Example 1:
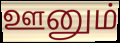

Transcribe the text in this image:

ஊனும்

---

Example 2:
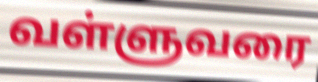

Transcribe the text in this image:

வள்ளுவரை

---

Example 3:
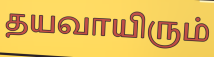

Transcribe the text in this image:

தயவாயிரும்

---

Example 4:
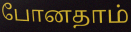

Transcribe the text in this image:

போனதாம்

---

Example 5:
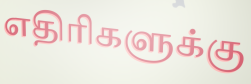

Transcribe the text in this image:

எதிரிகளுக்கு